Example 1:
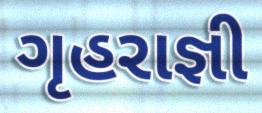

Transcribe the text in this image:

ગૃહરાજ્ઞી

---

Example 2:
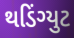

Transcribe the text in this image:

થડિંગ્યુટ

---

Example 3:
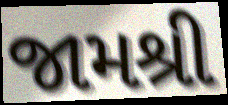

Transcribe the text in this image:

જામશ્રી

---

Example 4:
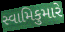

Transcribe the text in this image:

સ્વામિકુમારે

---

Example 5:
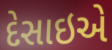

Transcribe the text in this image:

દેસાઇએ